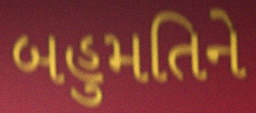
બહુમતિને